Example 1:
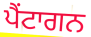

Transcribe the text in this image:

ਪੈਂਟਾਗਨ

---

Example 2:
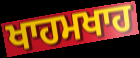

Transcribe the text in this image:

ਖਾਹਮਖਾਹ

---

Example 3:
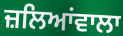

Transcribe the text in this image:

ਜ਼ਲਿਆਂਵਾਲਾ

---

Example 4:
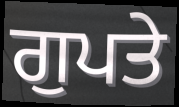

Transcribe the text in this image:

ਗੁਪਤੇ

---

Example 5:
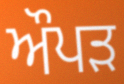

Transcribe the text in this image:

ਔਪੜ